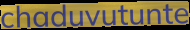
chaduvutunte